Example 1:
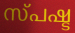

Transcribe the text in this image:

സ്‌പഷ്ട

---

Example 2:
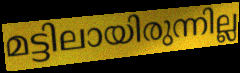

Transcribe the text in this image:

മട്ടിലായിരുന്നില്ല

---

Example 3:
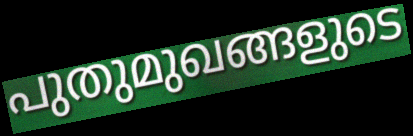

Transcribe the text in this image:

പുതുമുഖങ്ങളുടെ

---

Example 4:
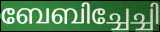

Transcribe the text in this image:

ബേബിച്ചേച്ചി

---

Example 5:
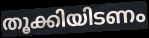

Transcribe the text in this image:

തൂക്കിയിടണം